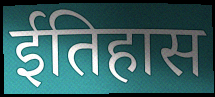
ईतिहास